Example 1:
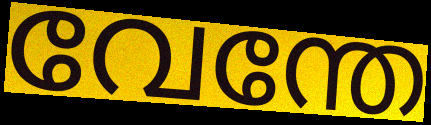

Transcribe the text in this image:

വേന്തേ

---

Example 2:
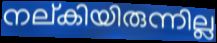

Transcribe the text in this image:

നല്കിയിരുന്നില്ല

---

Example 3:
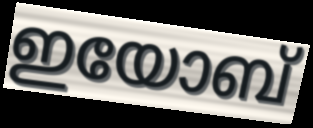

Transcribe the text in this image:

ഇയോബ്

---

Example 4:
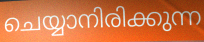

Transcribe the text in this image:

ചെയ്യാനിരിക്കുന്ന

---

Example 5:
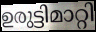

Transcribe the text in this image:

ഉരുട്ടിമാറ്റി